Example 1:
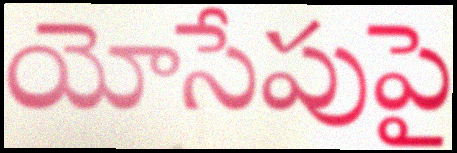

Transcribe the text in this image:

యోసేపుపై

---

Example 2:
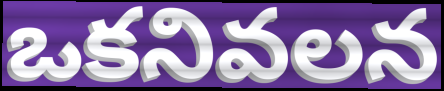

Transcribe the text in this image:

ఒకనివలన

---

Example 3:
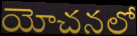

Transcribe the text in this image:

యోచనలో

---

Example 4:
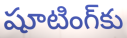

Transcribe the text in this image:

షూటింగ్‌కు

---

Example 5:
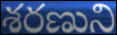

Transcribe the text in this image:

శరణుని